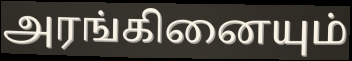
அரங்கினையும்